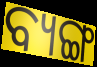
ବ୍ୟଙ୍ଗ